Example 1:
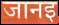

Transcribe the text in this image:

जानइ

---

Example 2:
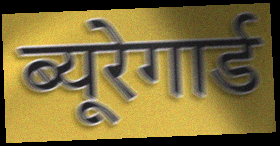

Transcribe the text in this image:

ब्यूरेगार्ड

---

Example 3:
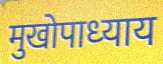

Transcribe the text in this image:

मुखोपाध्‍याय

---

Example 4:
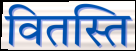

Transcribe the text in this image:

वितस्ति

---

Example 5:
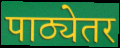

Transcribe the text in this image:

पाठ्येतर